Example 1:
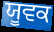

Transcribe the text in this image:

ਯੂਵਕ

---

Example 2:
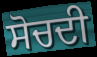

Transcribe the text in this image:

ਸੋਚਦੀ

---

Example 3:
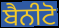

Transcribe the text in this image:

ਬੈਨੀਟੋ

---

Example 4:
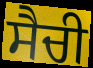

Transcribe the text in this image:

ਸੈਚੀ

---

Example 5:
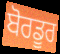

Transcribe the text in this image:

ਬੋਰਡੂਰ